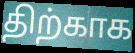
திற்காக